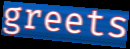
greets